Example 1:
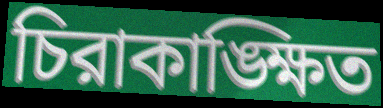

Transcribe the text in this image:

চিরাকাঙ্ক্ষিত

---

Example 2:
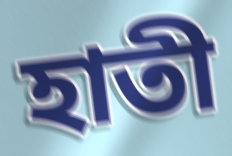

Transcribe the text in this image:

হাতী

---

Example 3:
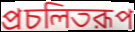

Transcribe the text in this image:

প্রচলিতরূপ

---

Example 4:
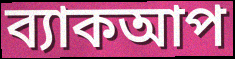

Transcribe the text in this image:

ব্যাকআপ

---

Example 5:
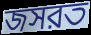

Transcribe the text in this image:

জসরত